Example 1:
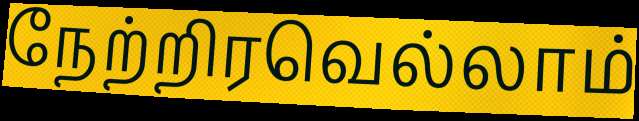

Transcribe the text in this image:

நேற்றிரவெல்லாம்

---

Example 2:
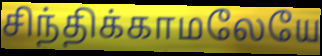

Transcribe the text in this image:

சிந்திக்காமலேயே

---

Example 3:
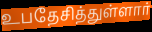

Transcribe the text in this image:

உபதேசித்துள்ளார்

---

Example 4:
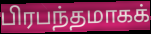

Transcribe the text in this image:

பிரபந்தமாகக்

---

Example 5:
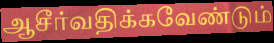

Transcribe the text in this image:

ஆசீர்வதிக்கவேண்டும்